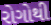
રોગોથી